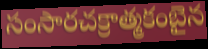
సంసారచక్రాత్మకంబైన